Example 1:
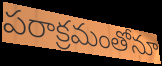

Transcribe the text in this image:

పరాక్రమంతోనూ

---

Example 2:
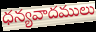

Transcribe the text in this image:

ధన్యవాదములు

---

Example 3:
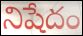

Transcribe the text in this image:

నిషేదం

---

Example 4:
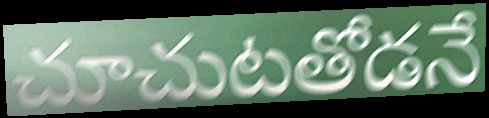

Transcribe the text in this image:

చూచుటతోడనే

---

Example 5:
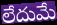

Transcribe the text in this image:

లేదుమే